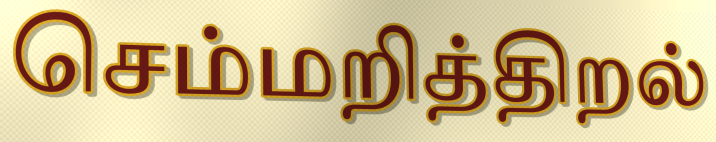
செம்மறித்திறல்